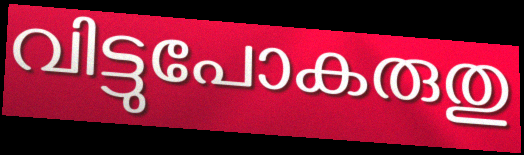
വിട്ടുപോകരുതു